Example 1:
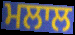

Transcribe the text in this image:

ਮਲਾਲ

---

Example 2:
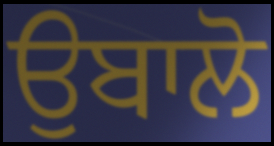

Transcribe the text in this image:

ਉਬਾਲੋ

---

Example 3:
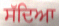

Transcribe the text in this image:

ਸੱਦਿਆ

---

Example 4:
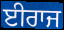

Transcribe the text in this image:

ਈਰਾਜ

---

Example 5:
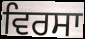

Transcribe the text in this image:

ਵਿਰਸਾ